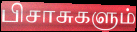
பிசாசுகளும்